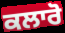
ਕਲਾਰੋ